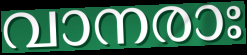
വാനരാഃ